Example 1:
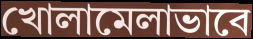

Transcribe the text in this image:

খোলামেলাভাবে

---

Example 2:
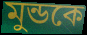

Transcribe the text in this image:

মুন্ডকে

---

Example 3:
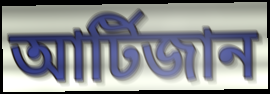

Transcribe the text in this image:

আর্টিজান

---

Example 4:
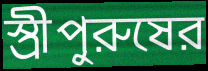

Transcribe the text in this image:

স্ত্রীপুরুষের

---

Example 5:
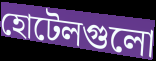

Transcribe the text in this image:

হোটেলগুলো